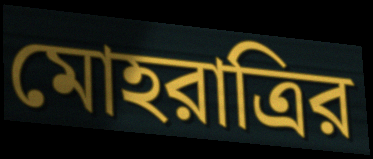
মোহরাত্রির